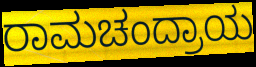
ರಾಮಚಂದ್ರಾಯ